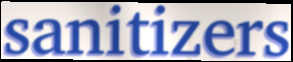
sanitizers